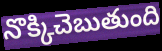
నొక్కిచెబుతుంది